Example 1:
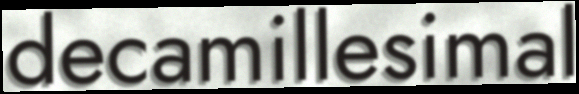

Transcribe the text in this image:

decamillesimal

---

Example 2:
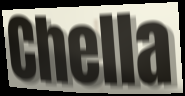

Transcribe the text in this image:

Chella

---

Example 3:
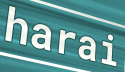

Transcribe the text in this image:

harai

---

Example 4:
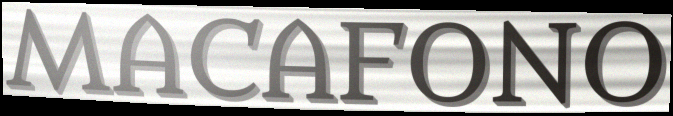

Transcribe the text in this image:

MACAFONO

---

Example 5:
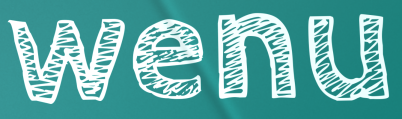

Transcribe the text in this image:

wenu